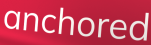
anchored